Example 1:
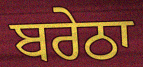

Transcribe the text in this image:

ਬਰੇਠਾ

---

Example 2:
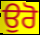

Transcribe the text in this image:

ਉਰੋ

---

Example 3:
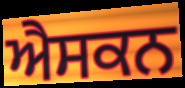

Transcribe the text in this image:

ਐਸਕਨ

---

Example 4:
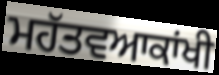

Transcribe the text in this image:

ਮਹੱਤਵਆਕਾਂਖੀ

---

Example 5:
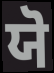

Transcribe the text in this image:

ਯੋ